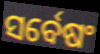
ସର୍ବେଷଂ